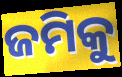
ଜମିକୁ